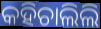
କହିଚାଲିଲି